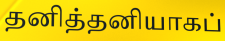
தனித்தனியாகப்